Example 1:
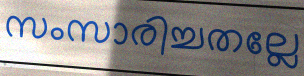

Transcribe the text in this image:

സംസാരിച്ചതല്ലേ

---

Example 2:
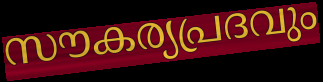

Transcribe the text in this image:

സൗകര്യപ്രദവും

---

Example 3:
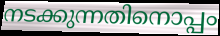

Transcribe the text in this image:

നടക്കുന്നതിനൊപ്പം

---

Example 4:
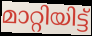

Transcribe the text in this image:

മാറ്റിയിട്ട്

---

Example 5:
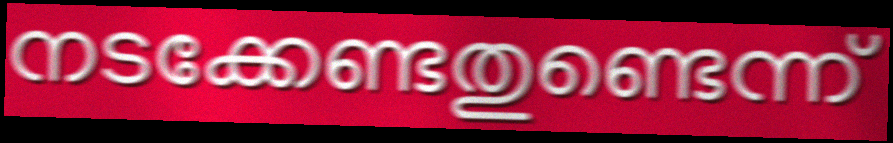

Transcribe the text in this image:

നടക്കേണ്ടതുണ്ടെന്ന്